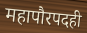
महापौरपदही